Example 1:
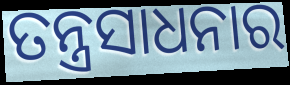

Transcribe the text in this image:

ତନ୍ତ୍ରସାଧନାର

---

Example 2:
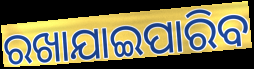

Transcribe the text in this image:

ରଖାଯାଇପାରିବ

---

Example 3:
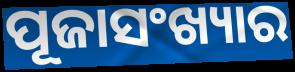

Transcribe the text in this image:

ପୂଜାସଂଖ୍ୟାର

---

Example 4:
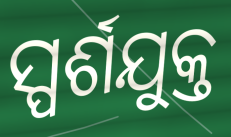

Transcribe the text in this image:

ସ୍ପର୍ଶଯୁକ୍ତ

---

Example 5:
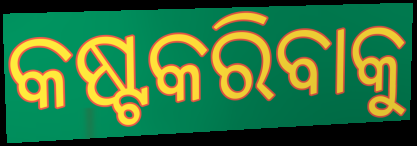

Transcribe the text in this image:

କଷ୍ଟକରିବାକୁ